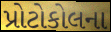
પ્રોટોકોલના